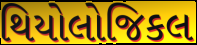
થિયોલોજિકલ